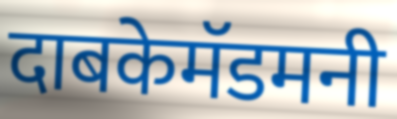
दाबकेमॅडमनी